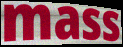
mass